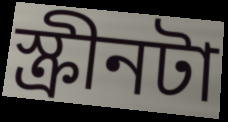
স্ক্রীনটা